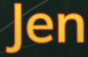
Jen